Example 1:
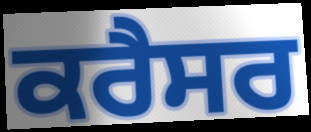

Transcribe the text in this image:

ਕਰੈਸਰ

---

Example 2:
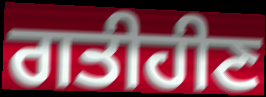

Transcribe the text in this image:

ਗਤੀਹੀਣ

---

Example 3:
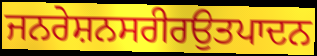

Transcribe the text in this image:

ਜਨਰੇਸ਼ਨਸਰੀਰਉਤਪਾਦਨ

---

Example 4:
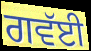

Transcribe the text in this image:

ਗਵੱਈ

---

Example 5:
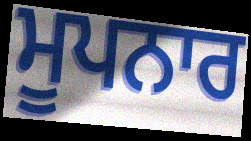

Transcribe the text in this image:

ਮੂਪਨਾਰ